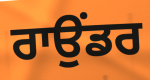
ਰਾਉਂਡਰ